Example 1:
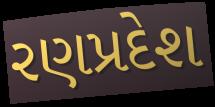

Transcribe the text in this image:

રણપ્રદેશ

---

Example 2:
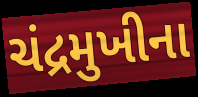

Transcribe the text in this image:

ચંદ્રમુખીના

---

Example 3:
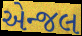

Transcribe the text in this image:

એન્જલ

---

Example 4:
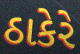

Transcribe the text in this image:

ઠાકેરે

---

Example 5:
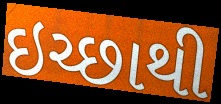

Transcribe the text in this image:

ઇચ્છાથી